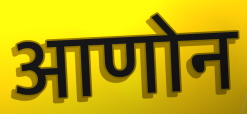
आणोन